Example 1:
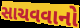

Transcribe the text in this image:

સાચવવાનો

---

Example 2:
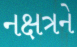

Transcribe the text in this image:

નક્ષત્રને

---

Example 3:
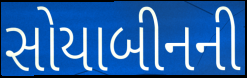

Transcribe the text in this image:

સોયાબીનની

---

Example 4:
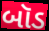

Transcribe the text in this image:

બૉડ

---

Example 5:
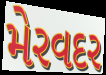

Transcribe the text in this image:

મેરવદર